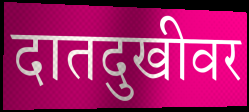
दातदुखीवर